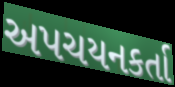
અપચયનકર્તા